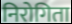
निरोगिता